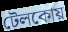
টেলকোয়